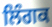
ਲਿੰਗਕ